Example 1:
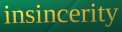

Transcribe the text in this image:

insincerity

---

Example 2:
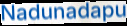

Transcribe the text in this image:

Nadunadapu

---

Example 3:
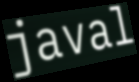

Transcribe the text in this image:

javal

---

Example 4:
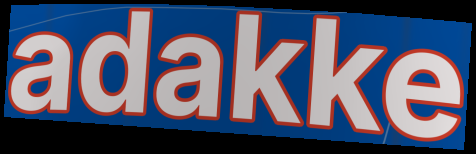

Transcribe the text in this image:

adakke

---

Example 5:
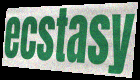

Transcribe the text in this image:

ecstasy